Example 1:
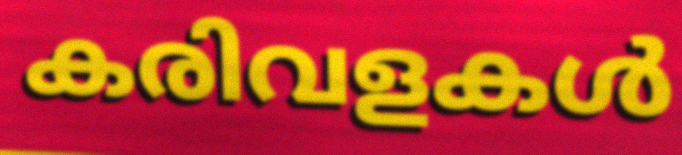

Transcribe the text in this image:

കരിവളകൾ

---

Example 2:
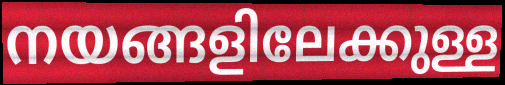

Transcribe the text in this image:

നയങ്ങളിലേക്കുള്ള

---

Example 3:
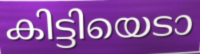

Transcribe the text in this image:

കിട്ടിയെടാ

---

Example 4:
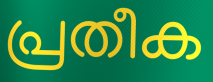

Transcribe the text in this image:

പ്രതീക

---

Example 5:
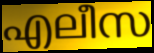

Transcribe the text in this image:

എലീസ